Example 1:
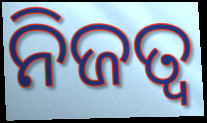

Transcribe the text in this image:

ନିଜତ୍ବ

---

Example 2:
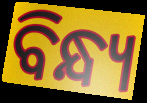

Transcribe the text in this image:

ବିନ୍ଧ୍ୟ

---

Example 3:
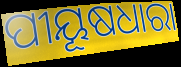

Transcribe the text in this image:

ପୀୟୂଷଧାରା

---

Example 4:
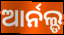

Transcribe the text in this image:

ଆର୍ନଲ୍ଡ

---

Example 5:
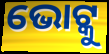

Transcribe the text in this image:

ଭୋଟ୍କୁ